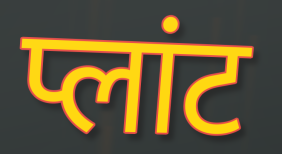
प्लांट